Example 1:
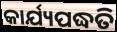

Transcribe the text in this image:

କାର୍ଯ୍ୟପଦ୍ଧତି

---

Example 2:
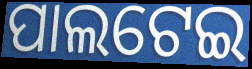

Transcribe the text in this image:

ପାଲଟେଇ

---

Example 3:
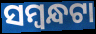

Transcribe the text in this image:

ସମ୍ବନ୍ଧଟା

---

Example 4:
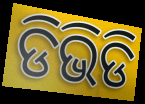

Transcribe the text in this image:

ଡିଭିଡି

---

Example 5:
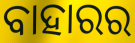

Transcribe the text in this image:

ବାହାରର